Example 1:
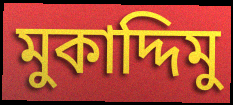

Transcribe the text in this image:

মুকাদ্দিমু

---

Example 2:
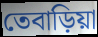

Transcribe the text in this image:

তেবাড়িয়া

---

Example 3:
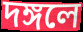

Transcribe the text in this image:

দঙ্গলে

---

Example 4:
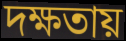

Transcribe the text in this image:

দক্ষতায়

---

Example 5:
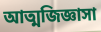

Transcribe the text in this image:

আত্মজিজ্ঞাসা